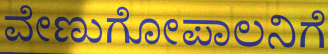
ವೇಣುಗೋಪಾಲನಿಗೆ